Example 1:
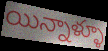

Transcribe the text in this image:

యిన్నాళ్ళూ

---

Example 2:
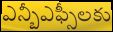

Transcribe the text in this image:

ఎన్బీఎఫ్సీలకు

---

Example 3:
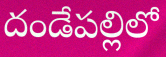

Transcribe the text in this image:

దండేపల్లిలో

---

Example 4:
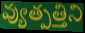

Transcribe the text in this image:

వ్యుత్పత్తిని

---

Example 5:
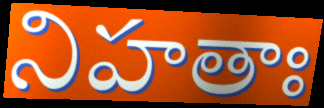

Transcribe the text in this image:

నిహతాః